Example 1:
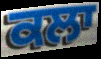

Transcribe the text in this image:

ਕਲਾ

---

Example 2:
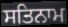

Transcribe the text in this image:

ਸਤਿਨਾਮ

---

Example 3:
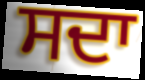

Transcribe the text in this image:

ਸਦਾ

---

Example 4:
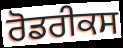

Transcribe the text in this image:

ਰੋਡਰੀਕਸ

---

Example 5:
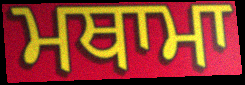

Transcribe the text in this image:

ਮਥਾਮਾ